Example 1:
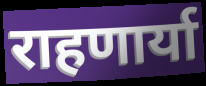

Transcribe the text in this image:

राहणार्या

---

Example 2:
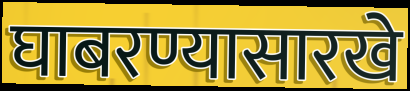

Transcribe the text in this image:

घाबरण्यासारखे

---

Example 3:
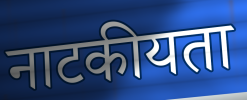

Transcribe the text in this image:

नाटकीयता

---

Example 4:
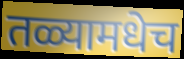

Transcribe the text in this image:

तळ्यामधेच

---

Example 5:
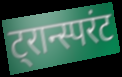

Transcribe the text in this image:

ट्रान्स्परंट